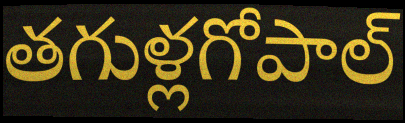
తగుళ్లగోపాల్